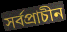
সর্বপ্রাচীন